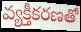
వ్యక్తీకరణతో